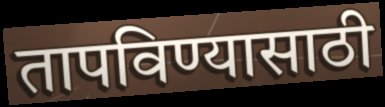
तापविण्यासाठी